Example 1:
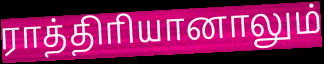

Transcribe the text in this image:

ராத்திரியானாலும்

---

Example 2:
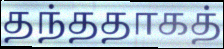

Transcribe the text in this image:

தந்ததாகத்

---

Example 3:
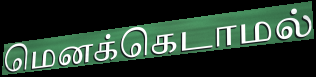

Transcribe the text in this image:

மெனக்கெடாமல்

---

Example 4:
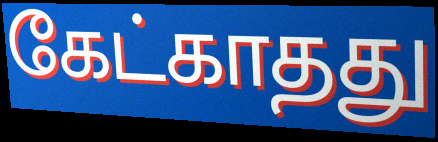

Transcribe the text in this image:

கேட்காதது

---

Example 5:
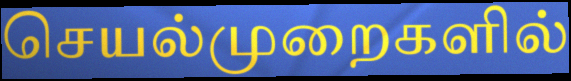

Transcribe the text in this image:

செயல்முறைகளில்